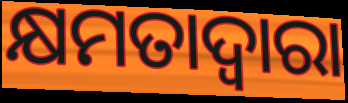
କ୍ଷମତାଦ୍ୱାରା